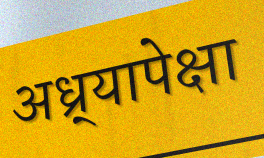
अध्र्यापेक्षा